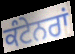
ਕੰਟੇਨਰਾਂ